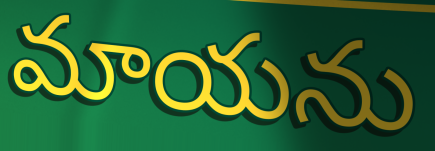
మాయను